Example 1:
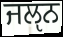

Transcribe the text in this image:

ਜਲੵਨ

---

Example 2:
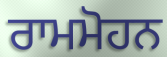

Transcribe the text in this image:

ਰਾਮਮੋਹਨ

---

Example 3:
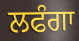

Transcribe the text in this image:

ਲਫੰਗਾ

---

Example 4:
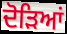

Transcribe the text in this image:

ਦੋੜਿਆਂ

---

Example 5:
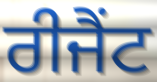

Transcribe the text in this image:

ਰੀਜੈਂਟ